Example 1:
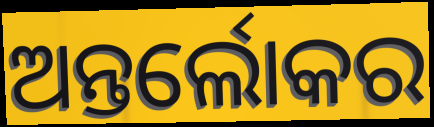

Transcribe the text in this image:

ଅନ୍ତର୍ଲୋକର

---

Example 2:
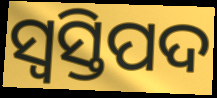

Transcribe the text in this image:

ସ୍ବସ୍ତିପଦ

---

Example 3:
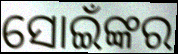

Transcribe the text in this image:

ସୋଇଁଙ୍କର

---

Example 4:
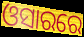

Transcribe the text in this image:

ଓସାରରେ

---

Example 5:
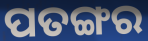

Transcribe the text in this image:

ପତଙ୍ଗର